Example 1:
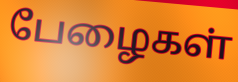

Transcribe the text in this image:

பேழைகள்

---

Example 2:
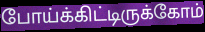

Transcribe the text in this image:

போய்க்கிட்டிருக்கோம்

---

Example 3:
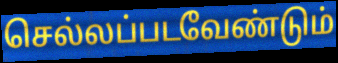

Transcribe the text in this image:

செல்லப்படவேண்டும்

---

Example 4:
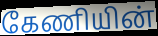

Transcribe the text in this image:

கேணியின்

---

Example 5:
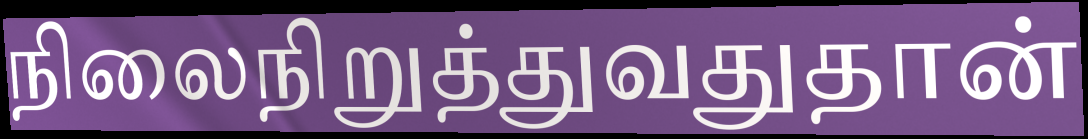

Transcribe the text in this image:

நிலைநிறுத்துவதுதான்